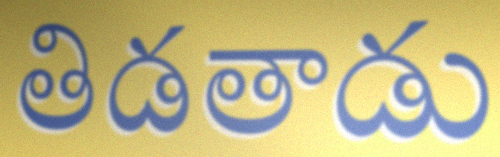
తిడతాడు